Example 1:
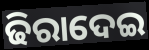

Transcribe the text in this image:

ଢିରାଦେଇ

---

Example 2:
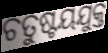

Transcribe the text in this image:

ଚତୁଷ୍ଟୟଯୁକ୍ତ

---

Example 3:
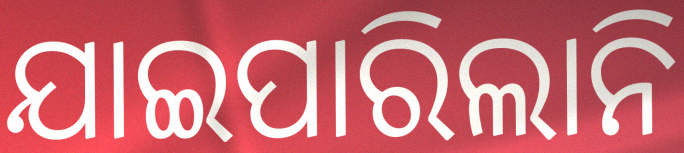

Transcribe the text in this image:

ଯାଇପାରିଲାନି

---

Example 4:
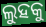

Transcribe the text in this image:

ଲୁହକୁ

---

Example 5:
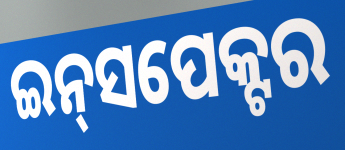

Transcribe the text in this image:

ଇନ୍‌ସପେକ୍ଟର